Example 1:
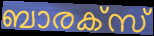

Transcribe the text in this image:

ബാരക്സ്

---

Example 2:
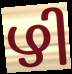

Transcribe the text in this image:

ഴി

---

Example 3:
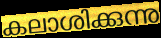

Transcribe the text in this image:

കലാശിക്കുന്നു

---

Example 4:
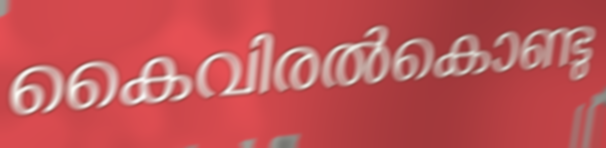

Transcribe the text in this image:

കൈവിരൽകൊണ്ടു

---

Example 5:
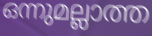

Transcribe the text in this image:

ഒന്നുമല്ലാത്ത